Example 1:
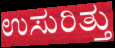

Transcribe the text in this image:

ಉಸುರಿತ್ತು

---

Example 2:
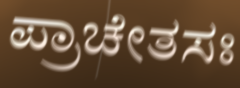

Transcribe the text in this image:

ಪ್ರಾಚೇತಸಃ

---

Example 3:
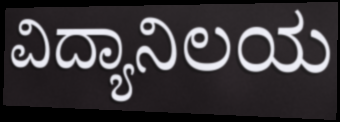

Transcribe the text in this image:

ವಿದ್ಯಾನಿಲಯ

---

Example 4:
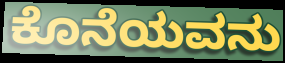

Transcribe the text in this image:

ಕೊನೆಯವನು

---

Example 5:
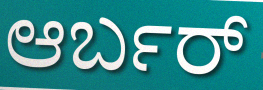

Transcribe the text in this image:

ಆರ್ಬರ್